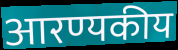
आरण्यकीय